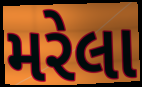
મરેલા